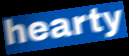
hearty